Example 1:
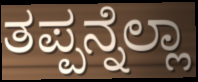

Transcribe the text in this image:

ತಪ್ಪನ್ನೆಲ್ಲಾ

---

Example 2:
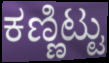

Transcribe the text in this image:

ಕಣ್ಣಿಟ್ಟು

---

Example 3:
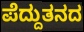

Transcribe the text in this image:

ಪೆದ್ದುತನದ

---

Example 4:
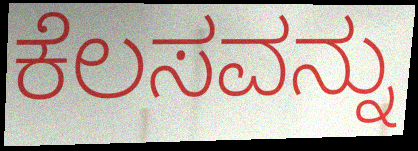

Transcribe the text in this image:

ಕೆಲಸವನ್ನು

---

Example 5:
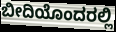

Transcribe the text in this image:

ಬೀದಿಯೊಂದರಲ್ಲಿ